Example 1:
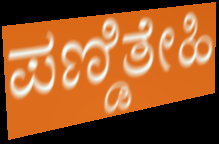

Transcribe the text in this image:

ಪಣ್ಡಿತೇಹಿ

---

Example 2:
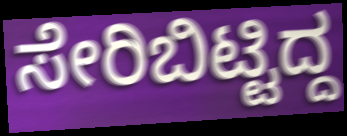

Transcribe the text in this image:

ಸೇರಿಬಿಟ್ಟಿದ್ದ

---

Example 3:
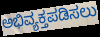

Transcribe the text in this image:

ಅಭಿವ್ಯಕ್ತಪಡಿಸಲು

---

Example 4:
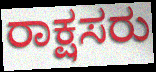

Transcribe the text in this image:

ರಾಕ್ಷಸರು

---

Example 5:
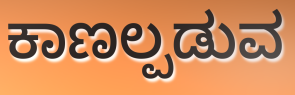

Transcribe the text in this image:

ಕಾಣಲ್ಪಡುವ